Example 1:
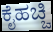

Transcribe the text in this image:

ಕೈಹಚ್ಚಿ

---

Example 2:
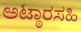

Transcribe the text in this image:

ಅಟ್ಠಾರಸಹಿ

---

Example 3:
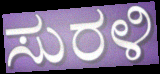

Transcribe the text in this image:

ಸುರಳಿ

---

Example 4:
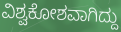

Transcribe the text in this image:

ವಿಶ್ವಕೋಶವಾಗಿದ್ದು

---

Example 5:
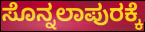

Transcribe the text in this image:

ಸೊನ್ನಲಾಪುರಕ್ಕೆ